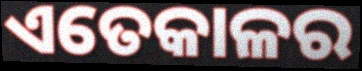
ଏତେକାଳର